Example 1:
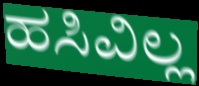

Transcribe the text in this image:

ಹಸಿವಿಲ್ಲ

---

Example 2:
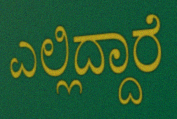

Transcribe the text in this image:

ಎಲ್ಲಿದ್ದಾರೆ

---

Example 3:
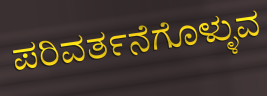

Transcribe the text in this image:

ಪರಿವರ್ತನೆಗೊಳ್ಳುವ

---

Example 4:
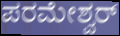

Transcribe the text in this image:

ಪರಮೇಶ್ವರ್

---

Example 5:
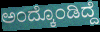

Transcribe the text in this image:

ಅಂದ್ಕೊಂಡಿದ್ದೆ